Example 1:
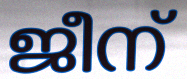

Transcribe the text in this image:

ജീന്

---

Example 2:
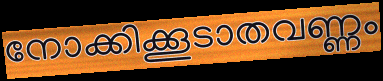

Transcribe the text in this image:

നോക്കിക്കൂടാതവണ്ണം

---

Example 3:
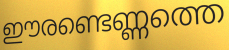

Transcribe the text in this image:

ഈരണ്ടെണ്ണത്തെ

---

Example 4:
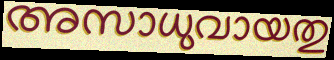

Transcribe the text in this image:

അസാധുവായതു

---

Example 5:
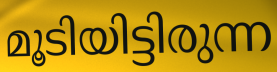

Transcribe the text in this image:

മൂടിയിട്ടിരുന്ന